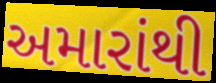
અમારાંથી